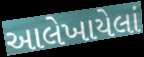
આલેખાયેલાં